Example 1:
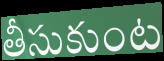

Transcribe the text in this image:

తీసుకుంట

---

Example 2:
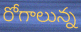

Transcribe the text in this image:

రోగాలున్న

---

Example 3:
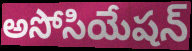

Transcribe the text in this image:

అసోసియేషన్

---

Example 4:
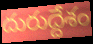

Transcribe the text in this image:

దురుద్దేశం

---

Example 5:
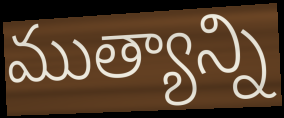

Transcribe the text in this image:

ముత్యాన్ని